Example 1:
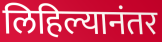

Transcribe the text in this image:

लिहिल्यानंतर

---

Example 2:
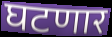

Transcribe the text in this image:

घटणार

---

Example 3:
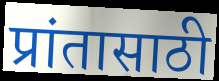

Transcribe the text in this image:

प्रांतासाठी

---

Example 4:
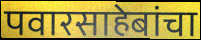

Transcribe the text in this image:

पवारसाहेबांचा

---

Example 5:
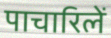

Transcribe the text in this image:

पाचारिलें